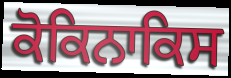
ਕੋਕਿਨਾਕਿਸ